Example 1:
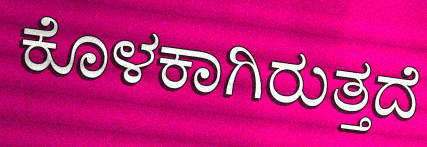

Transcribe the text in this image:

ಕೊಳಕಾಗಿರುತ್ತದೆ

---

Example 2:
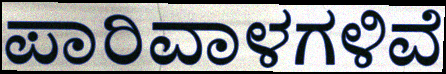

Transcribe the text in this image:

ಪಾರಿವಾಳಗಳಿವೆ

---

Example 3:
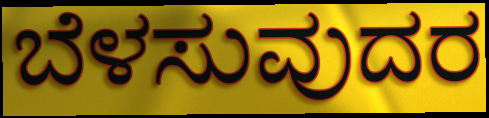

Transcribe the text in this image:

ಬೆಳಸುವುದರ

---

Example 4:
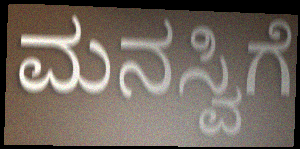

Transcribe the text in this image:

ಮನಸ್ವಿಗೆ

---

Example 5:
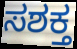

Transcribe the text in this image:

ಸಶಕ್ತ